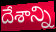
దేశాన్ని